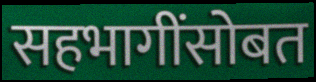
सहभागींसोबत